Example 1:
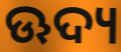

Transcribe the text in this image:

ଊଦ୍ୟ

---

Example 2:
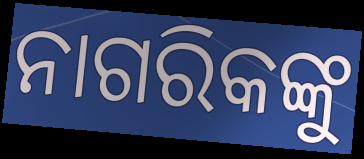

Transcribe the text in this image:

ନାଗରିକଙ୍କୁ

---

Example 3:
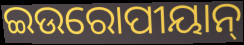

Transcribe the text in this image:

ଇଉରୋପୀୟାନ୍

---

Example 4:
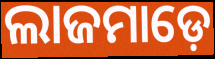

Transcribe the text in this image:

ଲାଜମାଡ଼େ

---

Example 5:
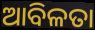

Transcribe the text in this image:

ଆବିଳତା